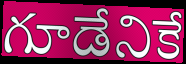
గూడేనికే